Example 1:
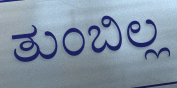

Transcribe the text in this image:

ತುಂಬಿಲ್ಲ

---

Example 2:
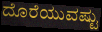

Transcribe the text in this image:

ದೊರೆಯುವಷ್ಟು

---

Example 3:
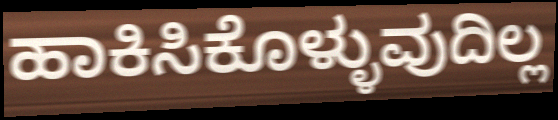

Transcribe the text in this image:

ಹಾಕಿಸಿಕೊಳ್ಳುವುದಿಲ್ಲ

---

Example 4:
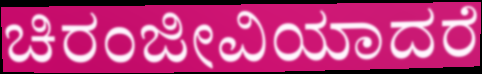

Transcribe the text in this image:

ಚಿರಂಜೀವಿಯಾದರೆ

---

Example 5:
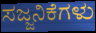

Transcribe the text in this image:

ಸಜ್ಜನಿಕೆಗಳು